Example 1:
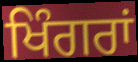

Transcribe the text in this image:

ਖਿੰਗਰਾਂ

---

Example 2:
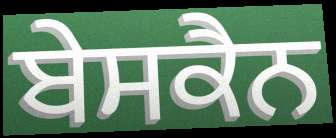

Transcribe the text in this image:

ਬੇਸਕੈਨ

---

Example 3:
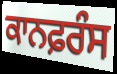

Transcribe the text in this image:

ਕਾਨਫ਼ਰੰਸ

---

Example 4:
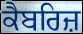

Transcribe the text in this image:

ਕੈਬਰਿਜ਼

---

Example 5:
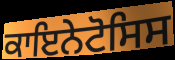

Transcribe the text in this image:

ਕਾਇਨੇਟੋਸਿਸ